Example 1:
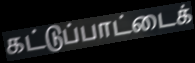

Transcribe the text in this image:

கட்டுப்பாட்டைக்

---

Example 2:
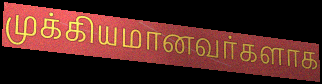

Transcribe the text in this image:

முக்கியமானவர்களாக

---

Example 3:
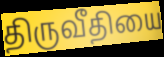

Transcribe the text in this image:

திருவீதியை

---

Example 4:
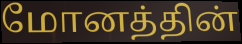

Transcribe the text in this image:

மோனத்தின்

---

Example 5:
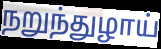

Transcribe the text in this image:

நறுந்துழாய்